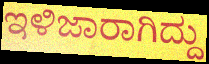
ಇಳಿಜಾರಾಗಿದ್ದು